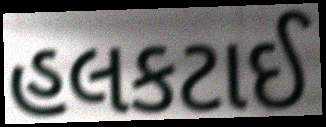
હલકટાઈ